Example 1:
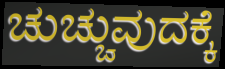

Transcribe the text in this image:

ಚುಚ್ಚುವುದಕ್ಕೆ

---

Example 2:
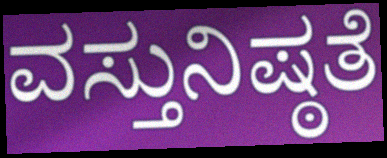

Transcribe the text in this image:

ವಸ್ತುನಿಷ್ಠತೆ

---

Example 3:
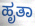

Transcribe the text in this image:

ಹೃತಾ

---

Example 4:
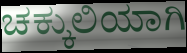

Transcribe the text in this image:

ಚಕ್ಕುಲಿಯಾಗಿ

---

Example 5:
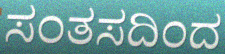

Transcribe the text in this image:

ಸಂತಸದಿಂದ